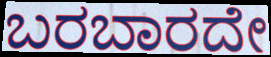
ಬರಬಾರದೇ